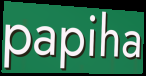
papiha